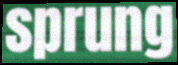
sprung